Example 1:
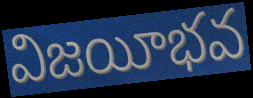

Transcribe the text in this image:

విజయీభవ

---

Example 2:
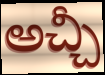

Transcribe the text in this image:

అచ్చీ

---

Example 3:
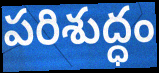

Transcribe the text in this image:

పరిశుద్ధం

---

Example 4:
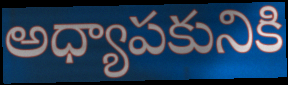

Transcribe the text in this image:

అధ్యాపకునికి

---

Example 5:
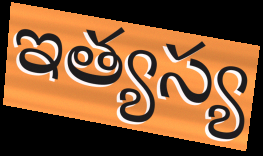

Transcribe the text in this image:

ఇత్యస్య